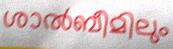
ശാൽബീമിലും